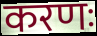
करणः